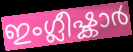
ഇംഗ്ലീഷ്കാർ